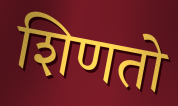
शिणतो